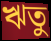
ঋতু